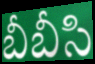
బీబీసి